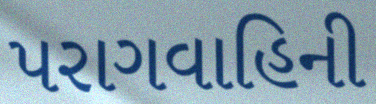
પરાગવાહિની